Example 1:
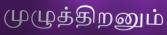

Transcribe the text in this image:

முழுத்திறனும்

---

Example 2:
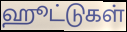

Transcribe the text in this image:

ஹூட்டுகள்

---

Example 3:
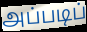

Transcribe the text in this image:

அப்படிப்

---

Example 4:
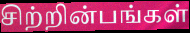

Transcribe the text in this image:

சிற்றின்பங்கள்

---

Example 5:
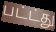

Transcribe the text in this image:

பட்ட்து